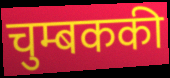
चुम्बककी